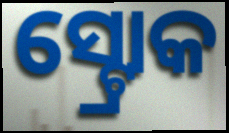
ସ୍ଟ୍ରୋକ